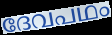
ദേവപഥം